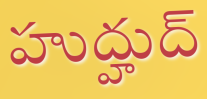
హుద్హుద్